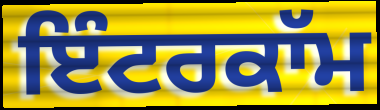
ਇੰਟਰਕਾੱਮ